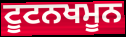
ਟੂਟਨਖਮੂਨ